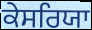
ਕੇਸਰਿਯਾ